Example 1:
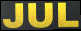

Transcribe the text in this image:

JUL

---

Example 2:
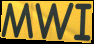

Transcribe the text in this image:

MWI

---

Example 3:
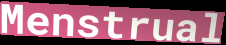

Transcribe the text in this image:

Menstrual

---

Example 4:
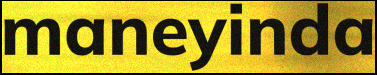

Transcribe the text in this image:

maneyinda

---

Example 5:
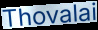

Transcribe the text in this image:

Thovalai